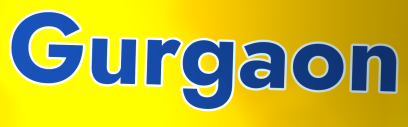
Gurgaon